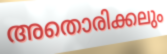
അതൊരിക്കലും